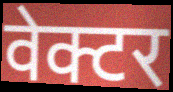
वेक्टर